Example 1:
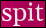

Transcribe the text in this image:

spit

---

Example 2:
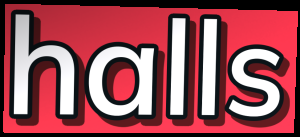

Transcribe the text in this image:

halls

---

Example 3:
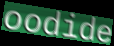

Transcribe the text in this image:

oodide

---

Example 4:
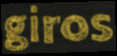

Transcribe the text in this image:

giros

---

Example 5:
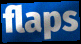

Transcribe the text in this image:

flaps